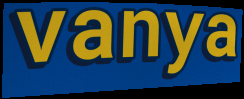
vanya